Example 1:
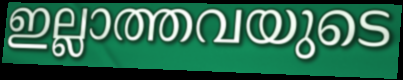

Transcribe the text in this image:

ഇല്ലാത്തവയുടെ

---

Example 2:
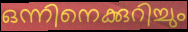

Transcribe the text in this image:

ഒന്നിനെക്കുറിച്ചും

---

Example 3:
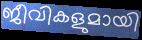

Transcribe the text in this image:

ജീവികളുമായി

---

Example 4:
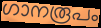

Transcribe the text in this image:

ഗാനരൂപം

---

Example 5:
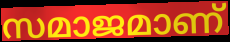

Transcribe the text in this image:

സമാജമാണ്